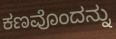
ಕಣವೊಂದನ್ನು